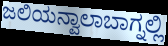
ಜಲಿಯನ್ವಾಲಾಬಾಗ್ನಲ್ಲಿ